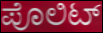
ಪೊಲಿಟ್